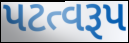
પટત્વરૂપ